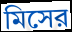
মিসের